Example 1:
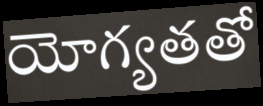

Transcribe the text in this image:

యోగ్యతతో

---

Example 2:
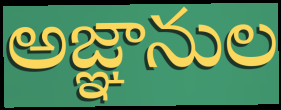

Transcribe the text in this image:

అజ్ఞానుల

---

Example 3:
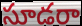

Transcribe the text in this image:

సూడరా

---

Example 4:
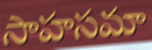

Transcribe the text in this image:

సాహసమా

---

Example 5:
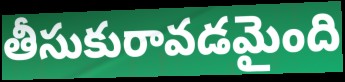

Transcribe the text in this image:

తీసుకురావడమైంది